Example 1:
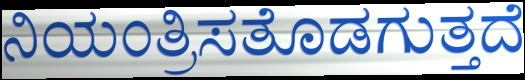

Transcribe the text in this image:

ನಿಯಂತ್ರಿಸತೊಡಗುತ್ತದೆ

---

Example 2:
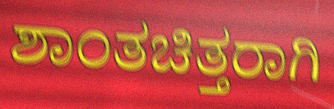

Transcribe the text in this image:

ಶಾಂತಚಿತ್ತರಾಗಿ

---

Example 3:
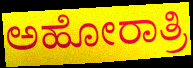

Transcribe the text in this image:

ಅಹೋರಾತ್ರಿ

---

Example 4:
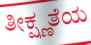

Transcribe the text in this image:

ತೀಕ್ಷ್ಣತೆಯ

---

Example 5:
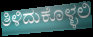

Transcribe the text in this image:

ತಿಳಿದುಕೊಳ್ಳಲಿ